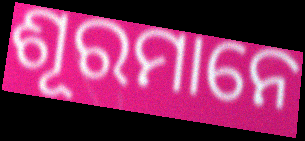
ଶୂରମାନେ